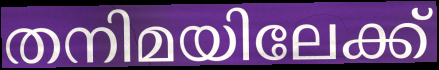
തനിമയിലേക്ക്